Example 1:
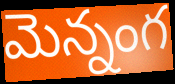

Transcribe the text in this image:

మెన్నంగ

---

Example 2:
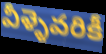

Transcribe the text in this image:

వీళ్ళెవరికీ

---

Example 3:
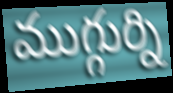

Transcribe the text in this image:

ముగ్గుర్ని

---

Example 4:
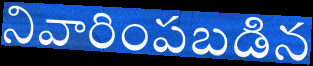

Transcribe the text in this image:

నివారింపబడిన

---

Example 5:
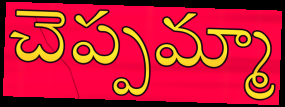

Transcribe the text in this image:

చెప్పమ్మా